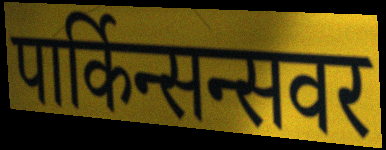
पार्किन्सन्सवर